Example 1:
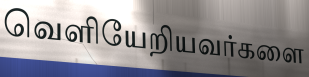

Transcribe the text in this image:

வெளியேறியவர்களை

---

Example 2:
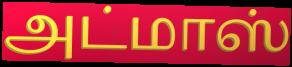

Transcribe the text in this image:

அட்மாஸ்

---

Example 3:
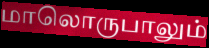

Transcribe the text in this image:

மாலொருபாலும்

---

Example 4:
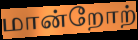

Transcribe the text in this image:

மான்றோற்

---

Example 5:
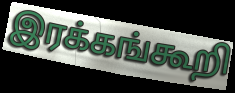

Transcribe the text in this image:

இரக்கங்கூறி